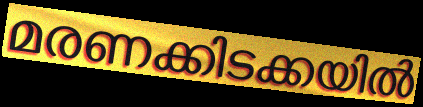
മരണക്കിടക്കയിൽ